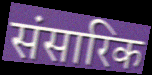
संसारिक